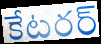
కేటరర్